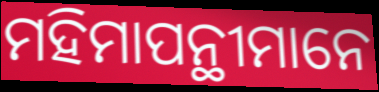
ମହିମାପନ୍ଥୀମାନେ